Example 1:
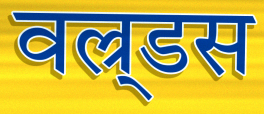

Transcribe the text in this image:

वल्र्डस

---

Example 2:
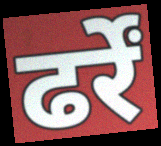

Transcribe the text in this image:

ढर्रें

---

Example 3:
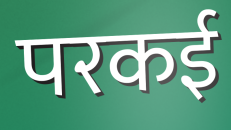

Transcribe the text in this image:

परकई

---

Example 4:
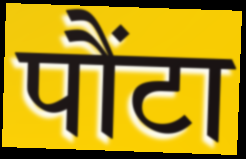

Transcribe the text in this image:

पौंटा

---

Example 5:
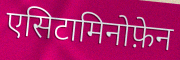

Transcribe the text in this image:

एसिटामिनोफ़ेन